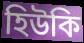
হিউকি